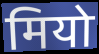
मियो